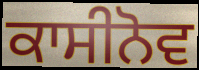
ਕਾਸੀਨੋਵ